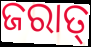
ଜରାତ୍